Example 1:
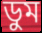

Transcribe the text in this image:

ডুম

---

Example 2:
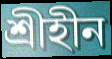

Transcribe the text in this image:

শ্রীহীন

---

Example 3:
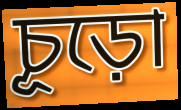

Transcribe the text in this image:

চূড়ো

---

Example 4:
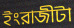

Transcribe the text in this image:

ইংরাজীটা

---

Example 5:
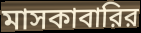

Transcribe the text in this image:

মাসকাবারির